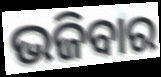
ଭଜିବାର